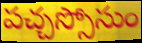
పచ్చస్సోసుం